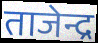
ताजेन्द्र